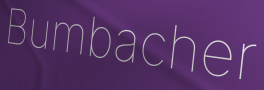
Bumbacher